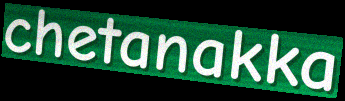
chetanakka